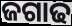
ଜଗାଢ